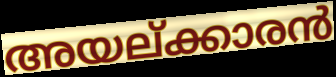
അയല്ക്കാരൻ